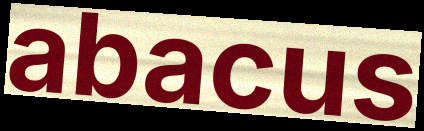
abacus